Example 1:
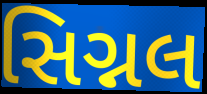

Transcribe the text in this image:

સિગ્નલ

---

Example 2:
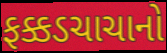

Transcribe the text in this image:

ફક્કડચાચાનો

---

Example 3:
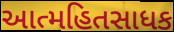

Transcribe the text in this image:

આત્મહિતસાધક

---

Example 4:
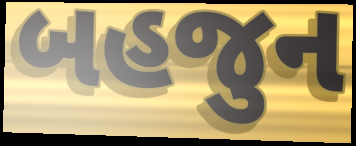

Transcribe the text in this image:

બહજુન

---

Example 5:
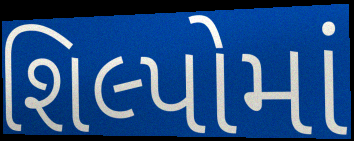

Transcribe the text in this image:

શિલ્પોમાં